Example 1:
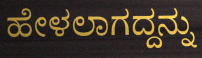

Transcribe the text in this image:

ಹೇಳಲಾಗದ್ದನ್ನು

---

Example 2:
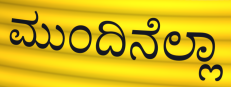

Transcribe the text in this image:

ಮುಂದಿನೆಲ್ಲಾ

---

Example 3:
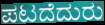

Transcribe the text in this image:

ಪಟದೆದುರು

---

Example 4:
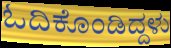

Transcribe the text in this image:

ಓದಿಕೊಂಡಿದ್ದಳು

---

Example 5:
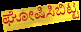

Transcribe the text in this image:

ಘೋಷಿಸಿಬಿಟ್ಟ